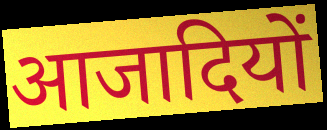
आजादियों